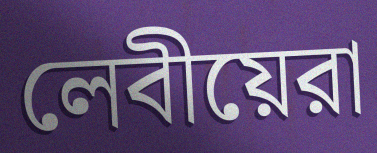
লেবীয়েরা